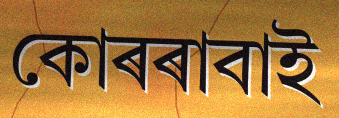
কোৰৰাবাই